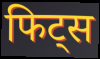
फिट्स